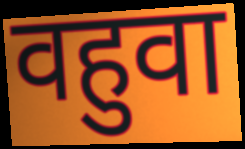
वहुवा